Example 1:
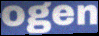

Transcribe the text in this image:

ogen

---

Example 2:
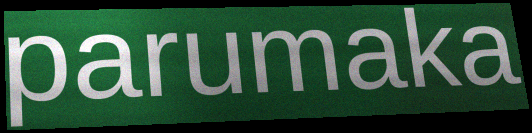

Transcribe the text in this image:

parumaka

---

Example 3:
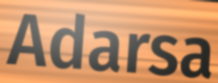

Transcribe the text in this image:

Adarsa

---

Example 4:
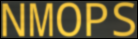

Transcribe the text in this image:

NMOPS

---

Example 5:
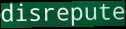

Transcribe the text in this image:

disrepute